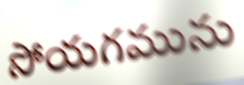
సోయగమును